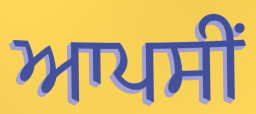
ਆਪਸੀਂ